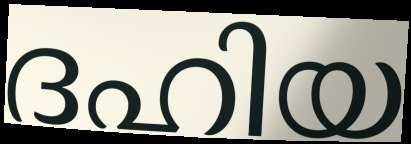
ദഹിയ